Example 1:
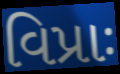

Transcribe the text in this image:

વિપ્રાઃ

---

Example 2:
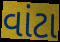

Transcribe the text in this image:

વાંટા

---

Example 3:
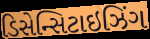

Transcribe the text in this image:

ડિસેન્સિટાઇઝિંગ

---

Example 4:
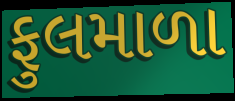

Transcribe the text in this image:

ફુલમાળા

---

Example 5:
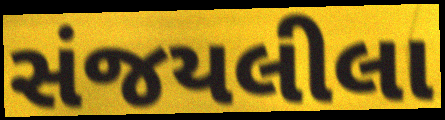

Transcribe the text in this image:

સંજયલીલા